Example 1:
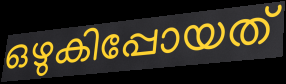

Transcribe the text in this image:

ഒഴുകിപ്പോയത്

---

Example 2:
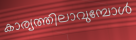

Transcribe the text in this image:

കാര്യത്തിലാവുമ്പോൾ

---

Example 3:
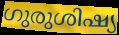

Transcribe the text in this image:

ഗുരുശിഷ്യ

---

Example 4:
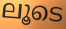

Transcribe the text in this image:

ലൂടെ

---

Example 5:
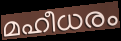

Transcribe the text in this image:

മഹീധരം